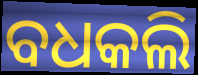
ବଧକଲି